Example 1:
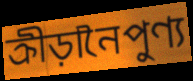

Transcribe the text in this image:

ক্রীড়ানৈপুণ্য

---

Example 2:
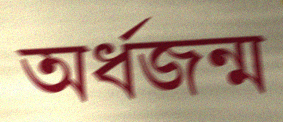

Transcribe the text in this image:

অর্ধজন্ম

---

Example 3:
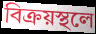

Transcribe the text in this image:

বিক্রয়স্থলে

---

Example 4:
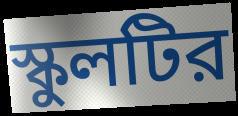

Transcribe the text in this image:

স্কুলটির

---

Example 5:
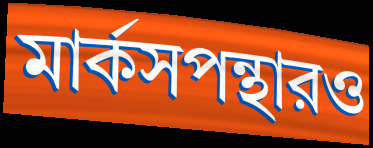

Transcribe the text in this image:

মার্কসপন্থারও